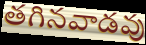
తగినవాడవు